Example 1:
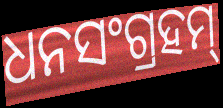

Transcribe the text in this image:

ଧନସଂଗ୍ରହମ୍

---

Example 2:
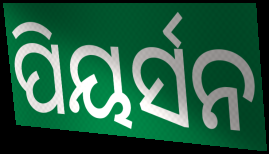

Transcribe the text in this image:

ପିୟର୍ସନ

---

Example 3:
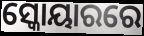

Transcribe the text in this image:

ସ୍କୋୟାରରେ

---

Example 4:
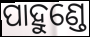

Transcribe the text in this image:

ପାହୁଣ୍ଡେ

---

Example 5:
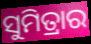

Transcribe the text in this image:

ସୁମିତ୍ରାର